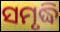
ସମୃଦ୍ଧି